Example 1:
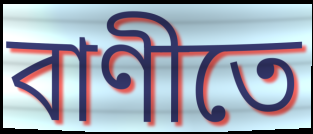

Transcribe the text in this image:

বাণীতে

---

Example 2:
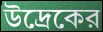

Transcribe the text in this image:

উদ্রেকের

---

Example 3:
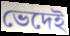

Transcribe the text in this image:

ভেদেই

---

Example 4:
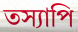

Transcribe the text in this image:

তস্যাপি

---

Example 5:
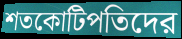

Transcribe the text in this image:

শতকোটিপতিদের